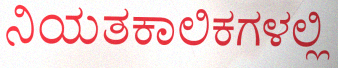
ನಿಯತಕಾಲಿಕಗಳಲ್ಲಿ